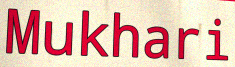
Mukhari